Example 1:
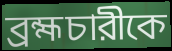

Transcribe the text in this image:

ব্রহ্মচারীকে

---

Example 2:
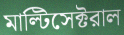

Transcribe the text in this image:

মাল্টিসেক্টরাল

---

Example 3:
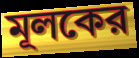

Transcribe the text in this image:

মূলকের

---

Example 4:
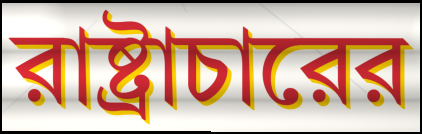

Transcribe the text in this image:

রাষ্ট্রাচারের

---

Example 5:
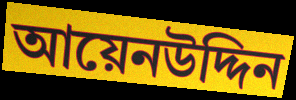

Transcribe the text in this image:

আয়েনউদ্দিন